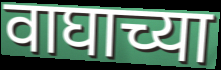
वाघाच्या